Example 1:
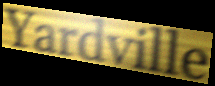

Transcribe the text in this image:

Yardville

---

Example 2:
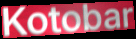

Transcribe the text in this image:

Kotobar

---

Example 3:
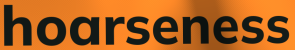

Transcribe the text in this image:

hoarseness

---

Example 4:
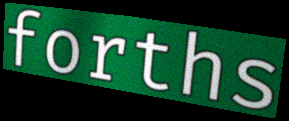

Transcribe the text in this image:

forths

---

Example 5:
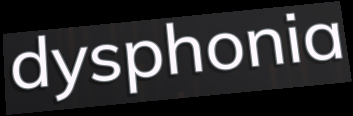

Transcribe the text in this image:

dysphonia